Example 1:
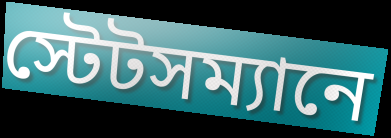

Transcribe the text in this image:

স্টেটসম্যানে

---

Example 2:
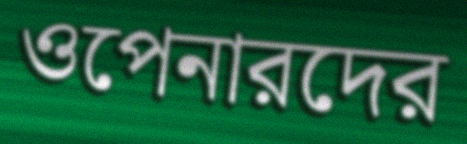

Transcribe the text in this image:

ওপেনারদের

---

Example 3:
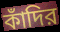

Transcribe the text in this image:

কাঁদির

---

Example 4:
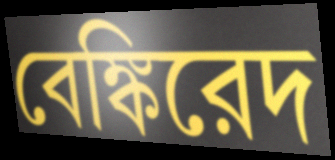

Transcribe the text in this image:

বেঙ্কিরেদ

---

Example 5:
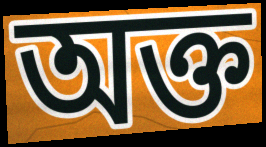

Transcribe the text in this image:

অক্ত